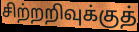
சிற்றறிவுக்குத்